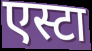
एस्टा